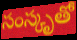
సంస్కృతో